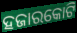
ହଜାରକୋଟି